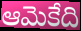
ఆమెకేది